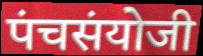
पंचसंयोजी